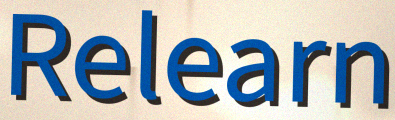
Relearn